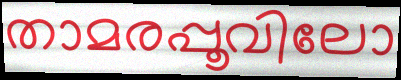
താമരപ്പൂവിലോ